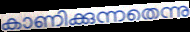
കാണിക്കുന്നതെന്നു